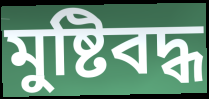
মুষ্টিবদ্ধ